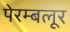
पेरम्बलूर